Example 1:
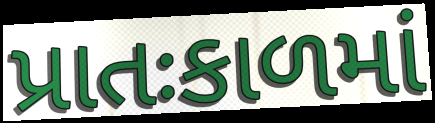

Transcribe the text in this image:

પ્રાતઃકાળમાં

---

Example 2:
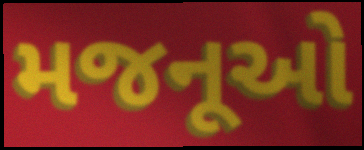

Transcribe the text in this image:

મજનૂઓ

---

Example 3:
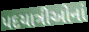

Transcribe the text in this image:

પદયાત્રીઓનાં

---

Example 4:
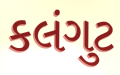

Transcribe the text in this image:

કલંગુટ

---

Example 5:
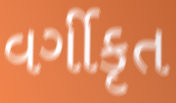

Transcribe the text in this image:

વર્ગીકૃત